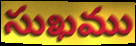
సుఖము